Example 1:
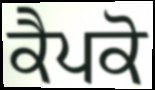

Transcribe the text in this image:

ਕੈਪਕੋ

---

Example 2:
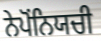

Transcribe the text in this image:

ਨੇਪੋਂਨਿਯਚੀ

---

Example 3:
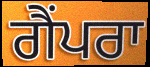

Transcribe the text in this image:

ਗੈਂਪਰਾ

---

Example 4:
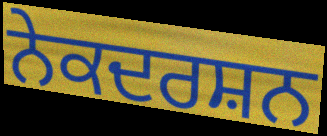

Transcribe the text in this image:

ਨੇਕਦਰਸ਼ਨ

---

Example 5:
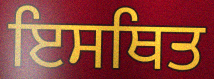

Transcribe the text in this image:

ਇਸਥਿਤ